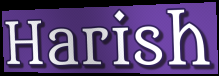
Harish